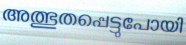
അത്ഭുതപ്പെട്ടുപോയി